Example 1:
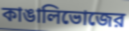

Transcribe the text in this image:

কাঙালিভোজের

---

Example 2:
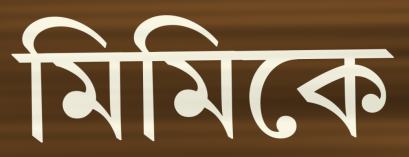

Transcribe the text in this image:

মিমিকে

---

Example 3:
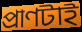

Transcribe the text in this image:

প্রাণটাই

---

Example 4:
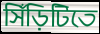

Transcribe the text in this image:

সিঁড়িটিতে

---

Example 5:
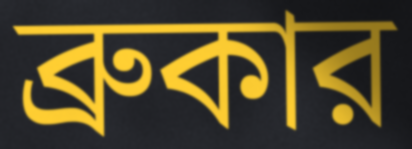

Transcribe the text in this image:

ব্রুকার